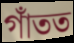
গাঁতত